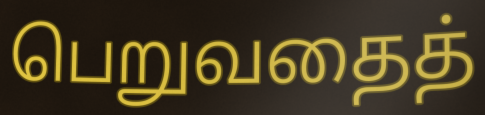
பெறுவதைத்